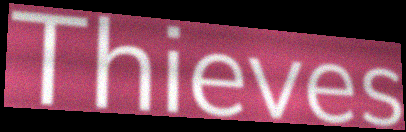
Thieves